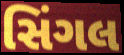
સિંગલ